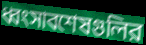
ধ্বংসাবশেষগুলির